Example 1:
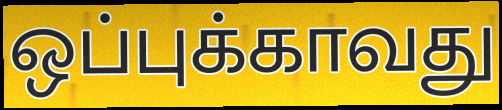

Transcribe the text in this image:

ஒப்புக்காவது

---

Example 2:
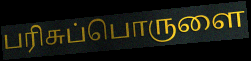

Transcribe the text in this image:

பரிசுப்பொருளை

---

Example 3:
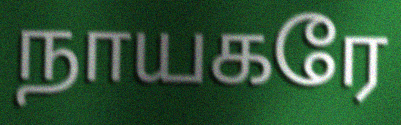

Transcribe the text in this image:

நாயகரே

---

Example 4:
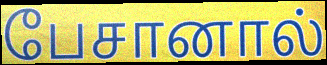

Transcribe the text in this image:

பேசானால்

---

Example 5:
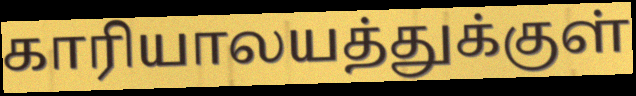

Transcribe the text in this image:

காரியாலயத்துக்குள்